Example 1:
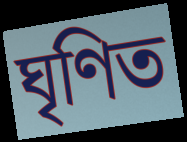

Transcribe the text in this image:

ঘৃণিত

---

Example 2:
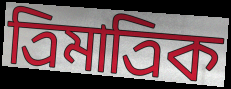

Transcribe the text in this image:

ত্রিমাত্রিক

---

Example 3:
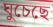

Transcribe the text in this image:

ঘুচেছে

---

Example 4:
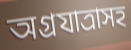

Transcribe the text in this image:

অগ্রযাত্রাসহ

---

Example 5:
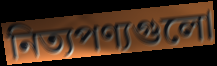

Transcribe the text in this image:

নিত্যপণ্যগুলো